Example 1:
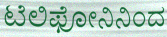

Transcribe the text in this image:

ಟೆಲಿಫೋನಿನಿಂದ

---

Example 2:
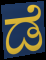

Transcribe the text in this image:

ಡೆ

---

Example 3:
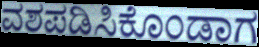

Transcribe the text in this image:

ವಶಪಡಿಸಿಕೊಂಡಾಗ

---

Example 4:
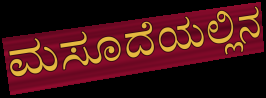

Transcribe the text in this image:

ಮಸೂದೆಯಲ್ಲಿನ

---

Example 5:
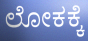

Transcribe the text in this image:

ಲೋಕಕ್ಕೆ